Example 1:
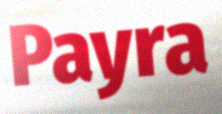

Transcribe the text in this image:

Payra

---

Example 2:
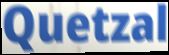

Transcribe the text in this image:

Quetzal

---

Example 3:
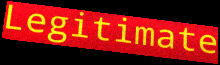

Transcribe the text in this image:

Legitimate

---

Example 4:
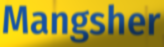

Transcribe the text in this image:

Mangsher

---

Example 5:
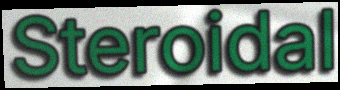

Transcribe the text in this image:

Steroidal